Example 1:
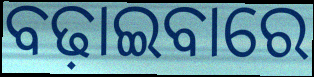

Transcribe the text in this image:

ବଢ଼ାଇବାରେ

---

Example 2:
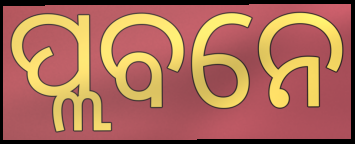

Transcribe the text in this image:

ପ୍ଲବନେ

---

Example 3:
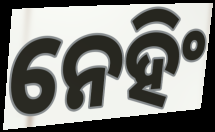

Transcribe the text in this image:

ନେହିଂ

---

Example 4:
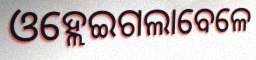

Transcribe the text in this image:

ଓହ୍ଲେଇଗଲାବେଳେ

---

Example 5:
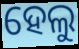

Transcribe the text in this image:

ହେଲୁ